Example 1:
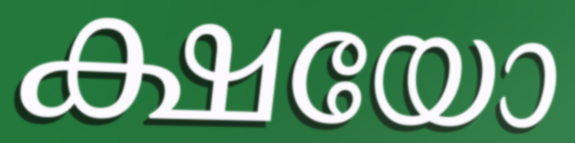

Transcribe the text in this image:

ക്ഷയോ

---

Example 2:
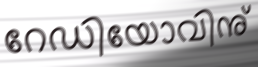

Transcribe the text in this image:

റേഡിയോവിനു്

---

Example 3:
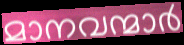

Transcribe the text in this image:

മാനവന്മാർ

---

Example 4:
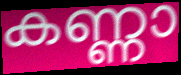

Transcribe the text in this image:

കണ്ണാ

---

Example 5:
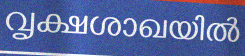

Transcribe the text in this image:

വൃക്ഷശാഖയിൽ